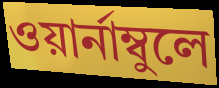
ওয়ার্নাম্বুলে